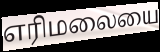
எரிமலையை